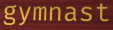
gymnast